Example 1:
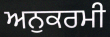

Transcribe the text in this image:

ਅਨੁਕਰਮੀ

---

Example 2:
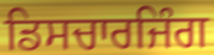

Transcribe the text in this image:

ਡਿਸਚਾਰਜਿੰਗ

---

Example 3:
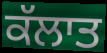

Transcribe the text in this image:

ਕੱਲਾਤ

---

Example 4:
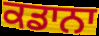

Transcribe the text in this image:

ਕਡਾਨਾ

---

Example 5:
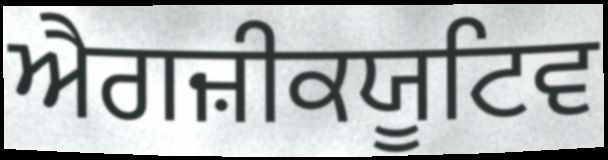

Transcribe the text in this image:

ਐਗਜ਼ੀਕਯੂਟਿਵ